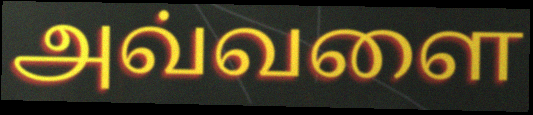
அவ்வளை